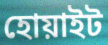
হোয়াইট